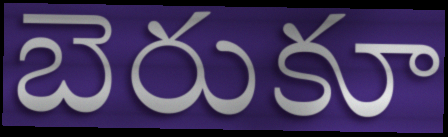
బెరుకూ